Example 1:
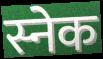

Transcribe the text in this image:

स्‍नेक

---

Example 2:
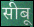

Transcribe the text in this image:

सीबू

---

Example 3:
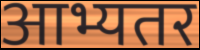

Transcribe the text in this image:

आभ्यतर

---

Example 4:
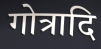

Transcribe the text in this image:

गोत्रादि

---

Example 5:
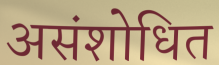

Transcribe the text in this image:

असंशोधित